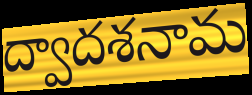
ద్వాదశనామ